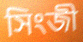
সিংজী